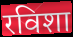
रविशा